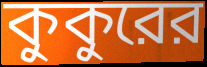
কুকুরের